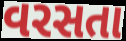
વરસતા